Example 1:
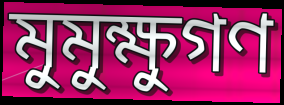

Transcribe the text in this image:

মুমুক্ষুগণ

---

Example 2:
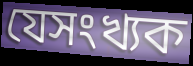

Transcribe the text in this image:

যেসংখ্যক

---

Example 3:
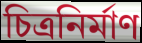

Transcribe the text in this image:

চিত্রনির্মাণ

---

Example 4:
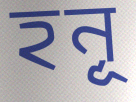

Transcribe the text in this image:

হনূ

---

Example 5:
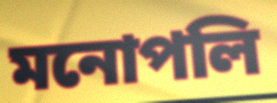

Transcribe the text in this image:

মনোপলি